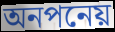
অনপনেয়